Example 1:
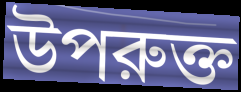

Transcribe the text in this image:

উপরুক্ত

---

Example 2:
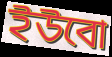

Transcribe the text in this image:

ইউবো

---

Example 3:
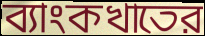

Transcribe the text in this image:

ব্যাংকখাতের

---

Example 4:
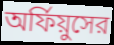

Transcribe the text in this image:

অর্ফিয়ুসের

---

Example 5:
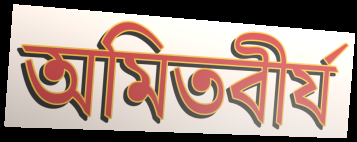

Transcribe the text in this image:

অমিতবীর্য